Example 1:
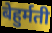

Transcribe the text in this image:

बेहुर्मती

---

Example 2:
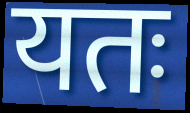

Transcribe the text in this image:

यतः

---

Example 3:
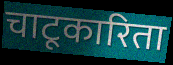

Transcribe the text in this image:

चाटूकारिता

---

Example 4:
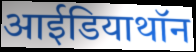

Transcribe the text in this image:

आईडियाथॉन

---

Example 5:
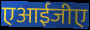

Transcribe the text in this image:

एआईजीए